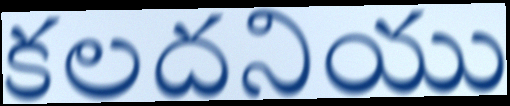
కలదనియు